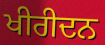
ਖੀਰੀਦਨ